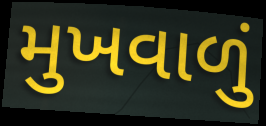
મુખવાળું